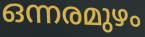
ഒന്നരമുഴം